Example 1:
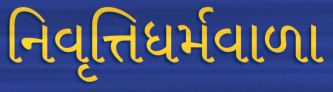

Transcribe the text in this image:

નિવૃત્તિધર્મવાળા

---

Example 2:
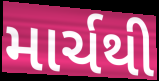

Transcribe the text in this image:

માર્ચથી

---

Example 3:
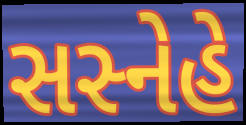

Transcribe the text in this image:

સસ્નેહે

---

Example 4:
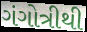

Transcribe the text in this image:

ગંગોત્રીથી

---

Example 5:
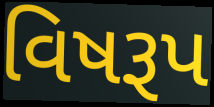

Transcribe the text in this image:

વિષરૂપ